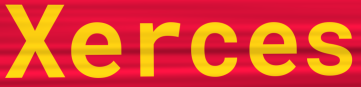
Xerces